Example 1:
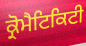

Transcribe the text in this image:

ਕ੍ਰੋਮੈਟਿਕਿਟੀ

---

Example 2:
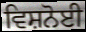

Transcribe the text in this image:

ਵਿਸ਼ਨੋਈ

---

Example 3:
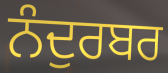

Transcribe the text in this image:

ਨੰਦੁਰਬਰ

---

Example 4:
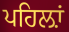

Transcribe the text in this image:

ਪਹਿਲ਼ਾਂ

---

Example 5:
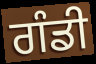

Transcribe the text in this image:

ਗੰਡੀ